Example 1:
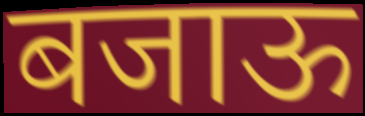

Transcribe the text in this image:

बजाऊ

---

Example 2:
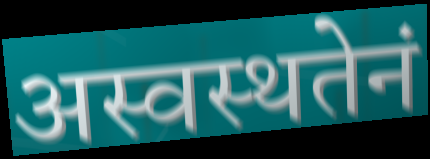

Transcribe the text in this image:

अस्वस्थतेनं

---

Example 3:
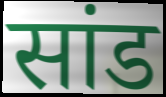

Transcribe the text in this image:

सांड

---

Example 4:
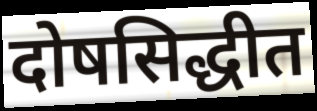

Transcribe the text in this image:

दोषसिद्धीत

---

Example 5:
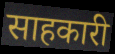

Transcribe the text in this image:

साहकारी